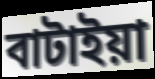
বাটাইয়া